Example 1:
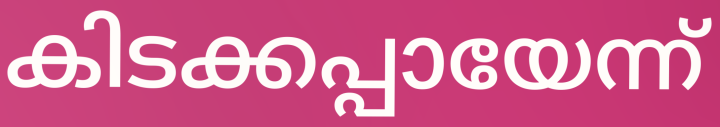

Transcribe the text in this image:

കിടക്കപ്പായേന്ന്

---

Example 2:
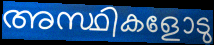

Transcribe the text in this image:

അസ്ഥികളോടു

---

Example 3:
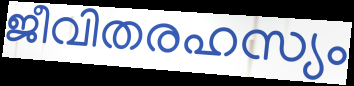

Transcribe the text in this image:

ജീവിതരഹസ്യം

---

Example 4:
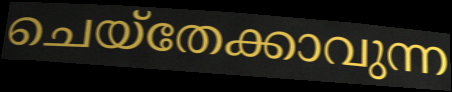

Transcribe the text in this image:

ചെയ്തേക്കാവുന്ന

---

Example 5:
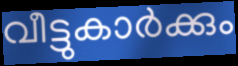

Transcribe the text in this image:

വീട്ടുകാർക്കും